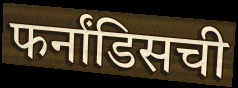
फर्नांडिसची